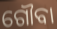
ଗୌବା